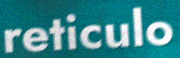
reticulo